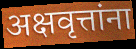
अक्षवृत्तांना